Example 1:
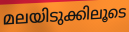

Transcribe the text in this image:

മലയിടുക്കിലൂടെ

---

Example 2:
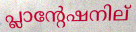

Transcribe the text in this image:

പ്ലാന്റേഷനില്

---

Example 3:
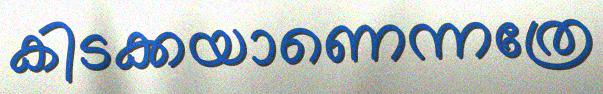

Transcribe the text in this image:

കിടക്കയാണെന്നത്രേ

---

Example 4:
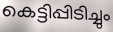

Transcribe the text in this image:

കെട്ടിപ്പിടിച്ചും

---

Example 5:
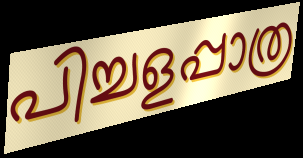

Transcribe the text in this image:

പിച്ചളപ്പാത്ര